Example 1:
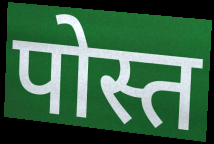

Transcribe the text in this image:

पोस्त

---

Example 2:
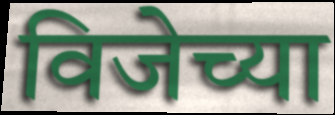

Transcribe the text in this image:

विजेच्या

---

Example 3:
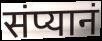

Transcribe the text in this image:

संप्यानं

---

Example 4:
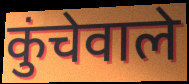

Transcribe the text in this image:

कुंचेवाले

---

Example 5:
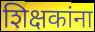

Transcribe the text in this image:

शिक्षकांना